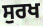
ਸੁਰਖ